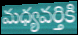
మధ్యవర్తికి